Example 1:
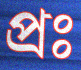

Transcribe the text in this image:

প্ৰঃ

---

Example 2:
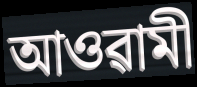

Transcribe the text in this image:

আওৱামী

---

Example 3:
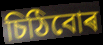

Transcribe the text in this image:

চিঠিবোৰ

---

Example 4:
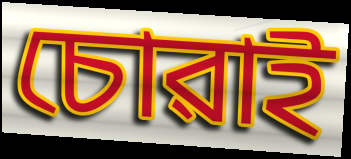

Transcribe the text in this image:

চোৱাই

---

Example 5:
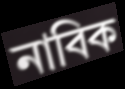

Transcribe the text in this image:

নাবিক